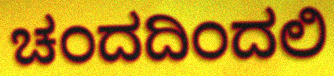
ಚಂದದಿಂದಲಿ